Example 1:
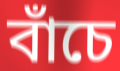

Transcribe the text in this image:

বাঁচে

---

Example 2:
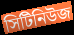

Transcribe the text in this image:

সিটিনিউজ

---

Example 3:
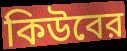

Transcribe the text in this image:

কিউবের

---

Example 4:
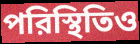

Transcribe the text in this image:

পরিস্থিতিও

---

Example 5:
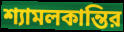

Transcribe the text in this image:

শ্যামলকান্তির